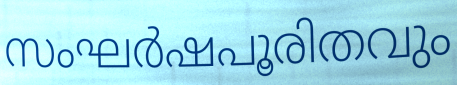
സംഘർഷപൂരിതവും